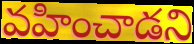
వహించాడని